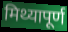
मिथ्यापूर्ण